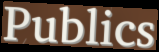
Publics